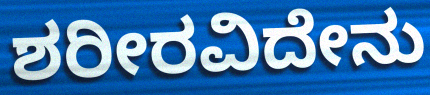
ಶರೀರವಿದೇನು